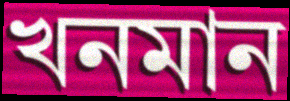
খনমান